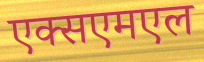
एक्सएमएल